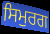
ਸਿਮੁਰਗ